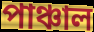
পাঞ্চাল